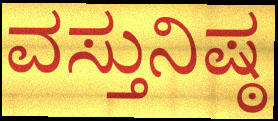
ವಸ್ತುನಿಷ್ಠ